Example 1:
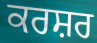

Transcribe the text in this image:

ਕਰਸ਼ਰ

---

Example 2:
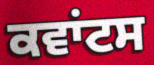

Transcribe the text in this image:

ਕਵਾਂਟਸ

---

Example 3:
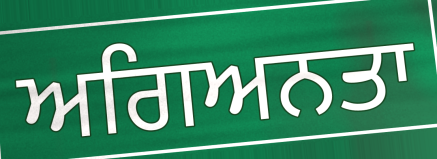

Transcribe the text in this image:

ਅਗਿਅਨਤਾ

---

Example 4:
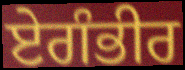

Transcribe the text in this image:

ਏਗੰਭੀਰ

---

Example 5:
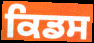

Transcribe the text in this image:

ਕਿਡਸ